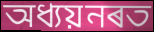
অধ্যয়নৰত